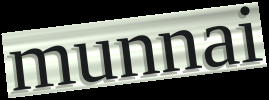
munnai